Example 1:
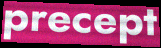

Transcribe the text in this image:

precept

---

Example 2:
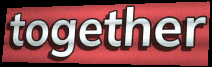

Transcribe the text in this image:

together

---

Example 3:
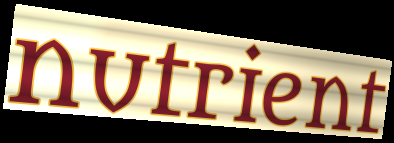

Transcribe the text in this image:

nutrient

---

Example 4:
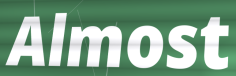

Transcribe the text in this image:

Almost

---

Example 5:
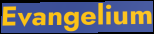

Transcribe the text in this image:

Evangelium